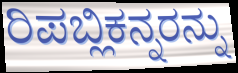
ರಿಪಬ್ಲಿಕನ್ನರನ್ನು